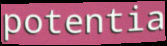
potentia